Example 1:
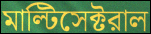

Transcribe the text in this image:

মাল্টিসেক্টরাল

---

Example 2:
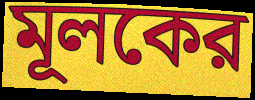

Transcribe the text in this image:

মূলকের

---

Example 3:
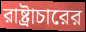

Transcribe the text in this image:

রাষ্ট্রাচারের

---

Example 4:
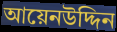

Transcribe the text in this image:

আয়েনউদ্দিন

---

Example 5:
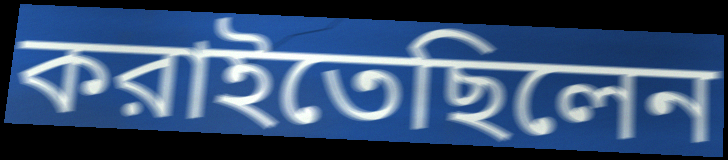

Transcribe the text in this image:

করাইতেছিলেন